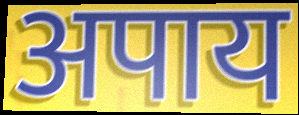
अपाय